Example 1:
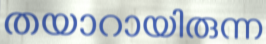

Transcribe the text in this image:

തയാറായിരുന്ന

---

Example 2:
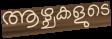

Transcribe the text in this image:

ആഴ്ചകളുടെ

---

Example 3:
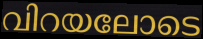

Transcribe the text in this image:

വിറയലോടെ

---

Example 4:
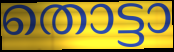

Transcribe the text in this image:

തൊട്ടാ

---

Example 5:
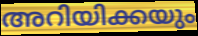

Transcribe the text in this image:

അറിയിക്കയും